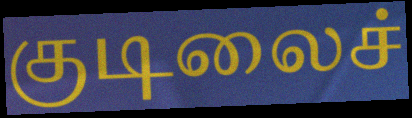
குடிலைச்